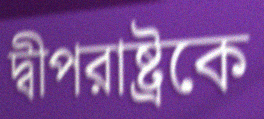
দ্বীপরাষ্ট্রকে